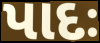
પાદઃ